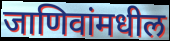
जाणिवांमधील